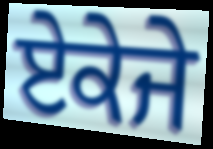
ਏਕੇਜੇ